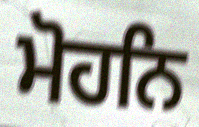
ਮੋਹਨਿ